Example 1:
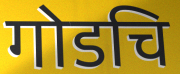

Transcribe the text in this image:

गोडचि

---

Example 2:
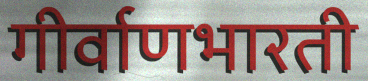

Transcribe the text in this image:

गीर्वाणभारती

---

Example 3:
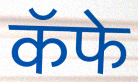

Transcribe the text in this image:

कॅफे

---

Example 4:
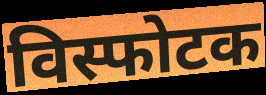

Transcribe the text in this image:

विस्फोटक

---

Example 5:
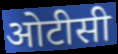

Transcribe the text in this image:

ओटीसी